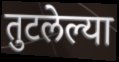
तुटलेल्या